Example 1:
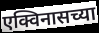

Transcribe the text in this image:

एक्विनासच्या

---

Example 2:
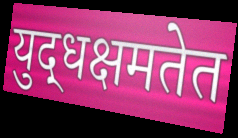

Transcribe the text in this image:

युद्धक्षमतेत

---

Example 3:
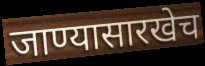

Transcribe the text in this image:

जाण्यासारखेच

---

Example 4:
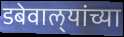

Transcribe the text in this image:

डबेवाल्यांच्या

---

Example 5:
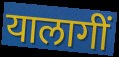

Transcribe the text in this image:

यालागीं